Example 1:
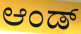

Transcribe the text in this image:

ಆಂಡ್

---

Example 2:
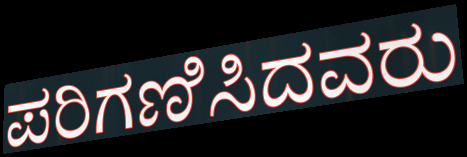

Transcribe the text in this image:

ಪರಿಗಣಿಸಿದವರು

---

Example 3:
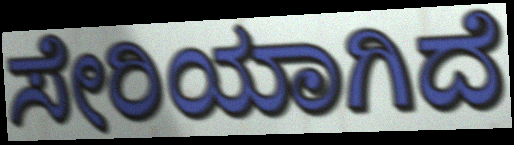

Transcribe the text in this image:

ಸೇರಿಯಾಗಿದೆ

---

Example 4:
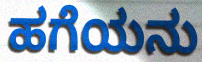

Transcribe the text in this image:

ಹಗೆಯನು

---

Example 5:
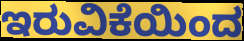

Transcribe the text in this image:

ಇರುವಿಕೆಯಿಂದ